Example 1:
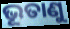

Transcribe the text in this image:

ଭୂତାଣୁ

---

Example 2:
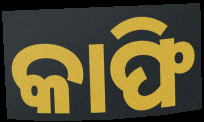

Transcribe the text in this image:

କାଫି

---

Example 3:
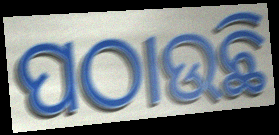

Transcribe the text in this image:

ପଠାଉଛି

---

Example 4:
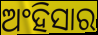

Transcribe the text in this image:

ଅଂହିସାର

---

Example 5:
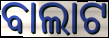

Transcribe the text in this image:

ବାଲାଟ